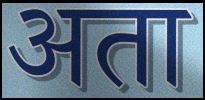
अता